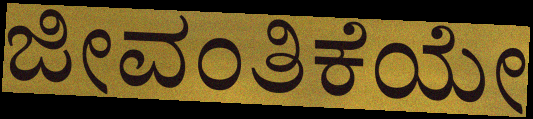
ಜೀವಂತಿಕೆಯೇ